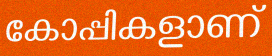
കോപ്പികളാണ്